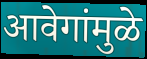
आवेगांमुळे